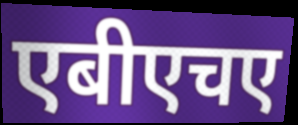
एबीएचए